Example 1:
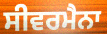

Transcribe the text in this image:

ਸੀਵਰਮੈਨਾ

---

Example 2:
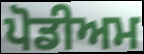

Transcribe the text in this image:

ਪੋਡੀਅਮ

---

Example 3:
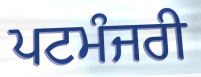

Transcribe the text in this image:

ਪਟਮੰਜਰੀ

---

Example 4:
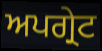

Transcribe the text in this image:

ਅਪਗ੍ਰੇਟ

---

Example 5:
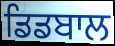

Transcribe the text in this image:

ਡਿਡਬਾਲ